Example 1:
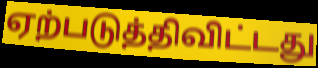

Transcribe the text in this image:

ஏற்படுத்திவிட்டது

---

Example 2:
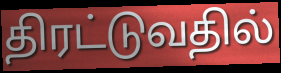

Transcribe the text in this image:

திரட்டுவதில்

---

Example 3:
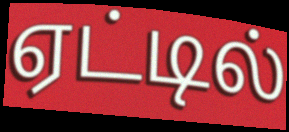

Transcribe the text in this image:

ஏட்டில்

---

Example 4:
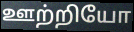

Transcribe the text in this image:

ஊற்றியோ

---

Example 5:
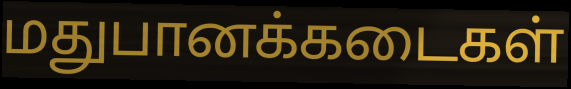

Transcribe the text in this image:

மதுபானக்கடைகள்